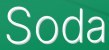
Soda